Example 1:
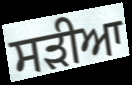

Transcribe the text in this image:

ਸੜੀਆ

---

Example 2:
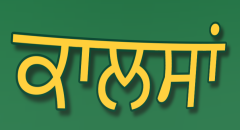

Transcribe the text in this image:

ਕਾਲਸਾਂ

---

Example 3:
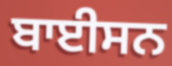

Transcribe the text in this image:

ਬਾਈਸਨ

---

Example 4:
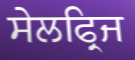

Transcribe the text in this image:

ਸੇਲਫ੍ਰਿਜ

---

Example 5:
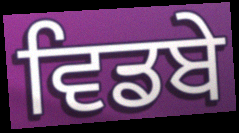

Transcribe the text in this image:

ਵਿਡਬੇ